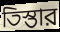
তিস্তার